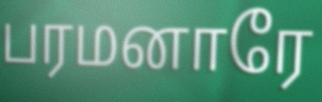
பரமனாரே